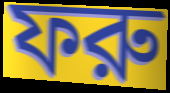
ফরু